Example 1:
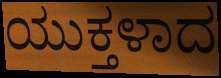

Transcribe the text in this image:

ಯುಕ್ತಳಾದ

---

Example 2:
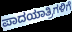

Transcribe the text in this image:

ಪಾದಯಾತ್ರಿಗಳಿಗೆ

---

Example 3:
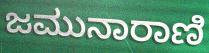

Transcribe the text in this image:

ಜಮುನಾರಾಣಿ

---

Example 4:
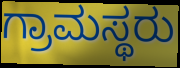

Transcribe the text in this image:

ಗ್ರಾಮಸ್ಥರು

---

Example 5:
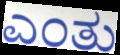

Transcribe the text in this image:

ಎಂತು